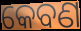
କେବଣ